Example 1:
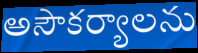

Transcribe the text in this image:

అసౌకర్యాలను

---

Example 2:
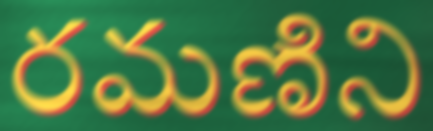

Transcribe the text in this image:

రమణిని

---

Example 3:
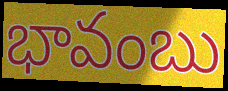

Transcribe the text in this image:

భావంబు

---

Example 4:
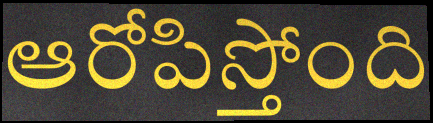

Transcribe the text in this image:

ఆరోపిస్తోంది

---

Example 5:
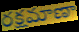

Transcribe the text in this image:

రక్షమాణా